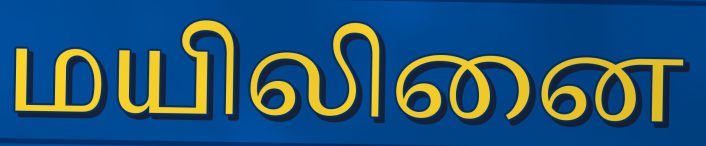
மயிலினை